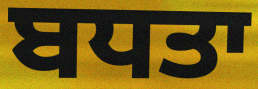
ਬਧਤਾ